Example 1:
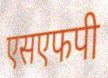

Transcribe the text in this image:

एसएफपी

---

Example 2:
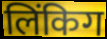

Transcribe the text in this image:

लिंकिग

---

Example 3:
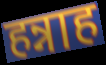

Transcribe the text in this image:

हन्नाह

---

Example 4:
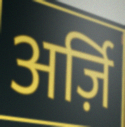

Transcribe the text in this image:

अर्ज़ि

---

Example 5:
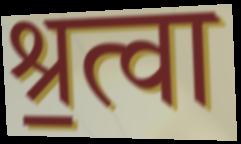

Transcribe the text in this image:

श्र॒त्वा